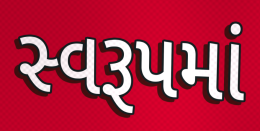
સ્વરૂપમાં